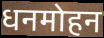
धनमोहन